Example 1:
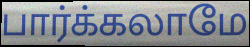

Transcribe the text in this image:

பார்க்கலாமே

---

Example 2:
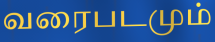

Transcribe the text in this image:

வரைபடமும்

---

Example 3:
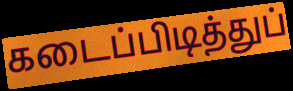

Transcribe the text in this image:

கடைப்பிடித்துப்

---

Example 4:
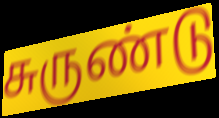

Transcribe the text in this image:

சுருண்டு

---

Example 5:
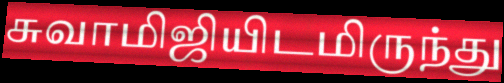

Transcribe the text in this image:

சுவாமிஜியிடமிருந்து